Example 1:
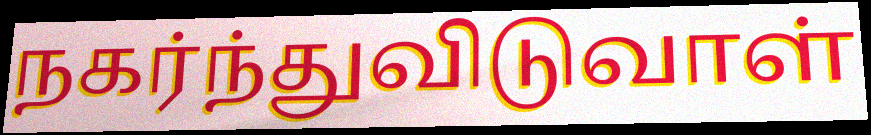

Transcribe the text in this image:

நகர்ந்துவிடுவாள்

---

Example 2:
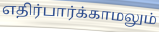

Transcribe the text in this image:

எதிர்பார்க்காமலும்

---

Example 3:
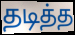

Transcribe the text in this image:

தடித்த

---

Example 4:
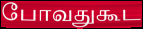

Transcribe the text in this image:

போவதுகூட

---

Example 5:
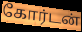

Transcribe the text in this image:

கோர்டன்